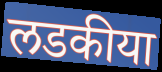
लडकीया